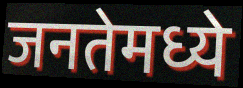
जनतेमध्ये